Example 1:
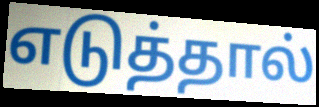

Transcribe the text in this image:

எடுத்தால்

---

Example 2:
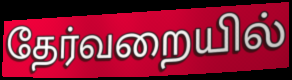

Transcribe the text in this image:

தேர்வறையில்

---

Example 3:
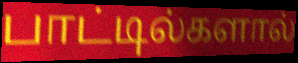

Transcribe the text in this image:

பாட்டில்களால்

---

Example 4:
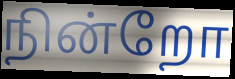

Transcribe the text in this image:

நின்றோ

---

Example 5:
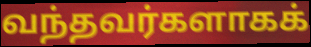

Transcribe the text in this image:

வந்தவர்களாகக்